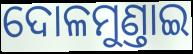
ଦୋଳମୁଣ୍ତାଇ